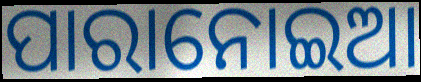
ପାରାନୋଇଆ